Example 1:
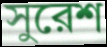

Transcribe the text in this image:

সুরেশ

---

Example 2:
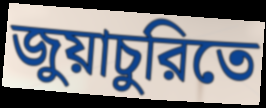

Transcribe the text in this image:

জুয়াচুরিতে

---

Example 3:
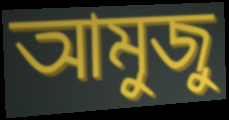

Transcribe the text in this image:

আমুজু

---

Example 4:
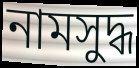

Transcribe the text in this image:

নামসুদ্ধ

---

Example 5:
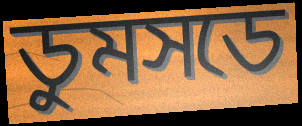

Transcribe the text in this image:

ডুমসডে